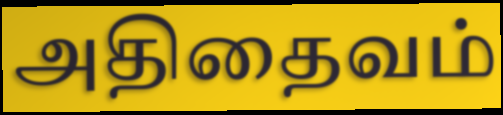
அதிதைவம்